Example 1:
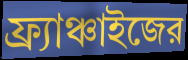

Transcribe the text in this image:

ফ্র্যাঞ্চাইজের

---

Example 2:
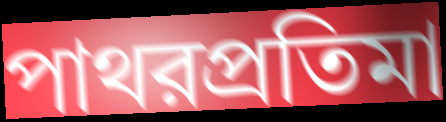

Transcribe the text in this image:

পাথরপ্রতিমা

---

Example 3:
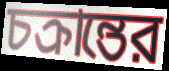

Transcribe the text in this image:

চক্রান্তের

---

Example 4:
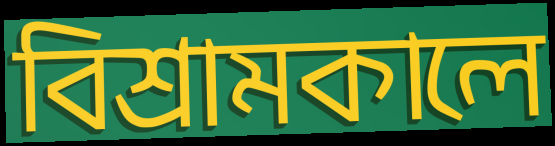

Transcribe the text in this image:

বিশ্রামকালে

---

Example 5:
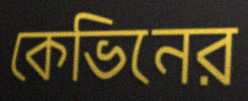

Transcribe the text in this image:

কেভিনের